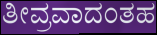
ತೀವ್ರವಾದಂತಹ